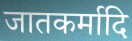
जातकर्मादि